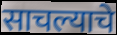
साचल्याचे